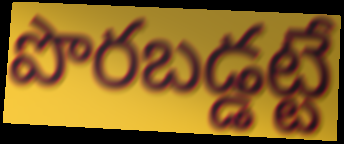
పొరబడ్డట్టే